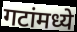
गटांमध्ये